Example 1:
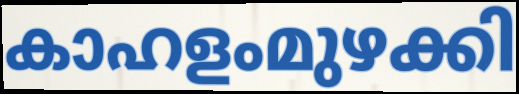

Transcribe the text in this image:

കാഹളംമുഴക്കി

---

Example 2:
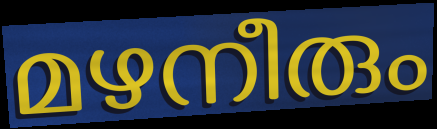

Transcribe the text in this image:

മഴനീരും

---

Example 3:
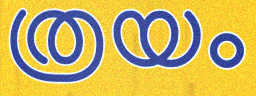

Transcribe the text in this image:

ത്രയം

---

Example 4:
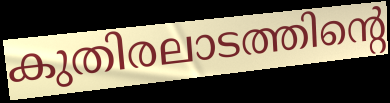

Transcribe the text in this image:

കുതിരലാടത്തിന്റെ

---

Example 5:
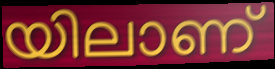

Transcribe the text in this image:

യിലാണ്